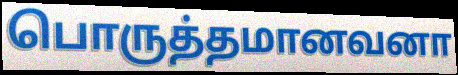
பொருத்தமானவனா